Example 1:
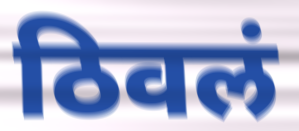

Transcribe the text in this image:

ठिवलं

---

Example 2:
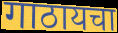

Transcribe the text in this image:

गाठायचा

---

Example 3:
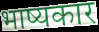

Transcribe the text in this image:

भाष्यकार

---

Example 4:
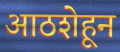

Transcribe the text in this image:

आठशेहून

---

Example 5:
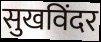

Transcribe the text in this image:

सुखविंदर